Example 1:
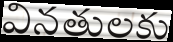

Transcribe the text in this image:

వినతులకు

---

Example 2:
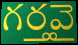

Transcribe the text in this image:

గర్తవై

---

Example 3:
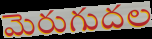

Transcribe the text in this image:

మెరుగుదల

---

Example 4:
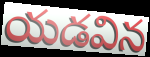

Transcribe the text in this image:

యడవిన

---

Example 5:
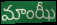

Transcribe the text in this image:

మాంఝీ